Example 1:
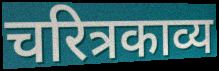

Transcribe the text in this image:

चरित्रकाव्य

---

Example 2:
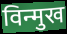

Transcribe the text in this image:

विन्मुख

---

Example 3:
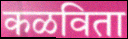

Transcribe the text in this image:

कळविता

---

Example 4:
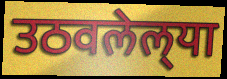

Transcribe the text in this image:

उठवलेल्या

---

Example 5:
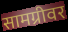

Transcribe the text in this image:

सामग्रीवर